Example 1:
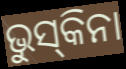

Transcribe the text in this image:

ଭୁସ୍‌କିନା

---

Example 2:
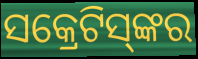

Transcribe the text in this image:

ସକ୍ରେଟିସ୍‌ଙ୍କର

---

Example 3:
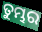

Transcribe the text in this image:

ତୁମ୍ଭର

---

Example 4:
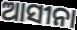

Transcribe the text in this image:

ଆସୀନା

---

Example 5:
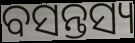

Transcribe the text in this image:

ବସନ୍ତସ୍ୟ